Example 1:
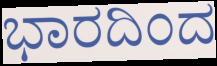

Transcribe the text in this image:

ಭಾರದಿಂದ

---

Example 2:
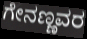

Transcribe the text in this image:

ಗೇನಣ್ಣವರ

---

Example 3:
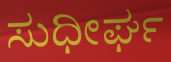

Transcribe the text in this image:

ಸುಧೀರ್ಘ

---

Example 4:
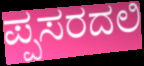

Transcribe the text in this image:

ಪ್ಪಸರದಲಿ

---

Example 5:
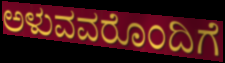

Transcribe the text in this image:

ಅಳುವವರೊಂದಿಗೆ